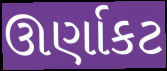
ઊર્ણાકટ